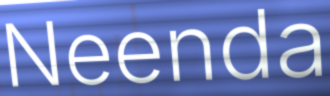
Neenda